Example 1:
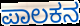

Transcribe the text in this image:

ಪಾಲಕನ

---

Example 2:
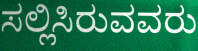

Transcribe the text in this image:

ಸಲ್ಲಿಸಿರುವವರು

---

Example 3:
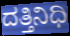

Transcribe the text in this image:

ದತ್ತಿನಿಧಿ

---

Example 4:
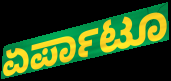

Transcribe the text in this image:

ಏರ್ಪಾಟೂ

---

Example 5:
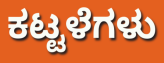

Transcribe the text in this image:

ಕಟ್ಟಳೆಗಳು